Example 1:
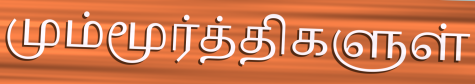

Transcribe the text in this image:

மும்மூர்த்திகளுள்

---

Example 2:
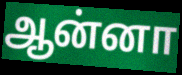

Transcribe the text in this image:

ஆன்னா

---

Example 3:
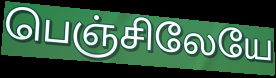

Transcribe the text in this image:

பெஞ்சிலேயே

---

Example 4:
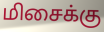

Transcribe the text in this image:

மிசைக்கு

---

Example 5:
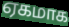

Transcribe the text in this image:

ஏகமாக